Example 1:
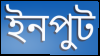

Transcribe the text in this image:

ইনপুট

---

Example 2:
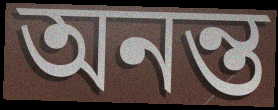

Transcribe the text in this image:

অনন্ত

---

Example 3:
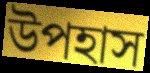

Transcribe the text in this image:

উপহাস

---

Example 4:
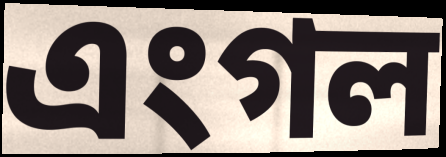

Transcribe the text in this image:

এংগল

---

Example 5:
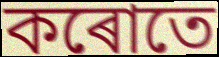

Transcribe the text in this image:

কৰোতে